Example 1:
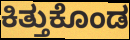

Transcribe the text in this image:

ಕಿತ್ತುಕೊಂಡ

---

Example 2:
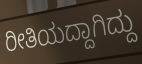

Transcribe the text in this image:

ರೀತಿಯದ್ದಾಗಿದ್ದು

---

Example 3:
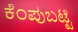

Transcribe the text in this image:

ಕೆಂಪುಬಟ್ಟೆ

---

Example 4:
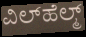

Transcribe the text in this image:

ವಿಲ್‌ಹೆಲ್ಮ್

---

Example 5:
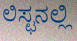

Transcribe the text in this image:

ಲಿಸ್ಟನಲ್ಲಿ